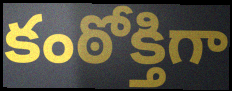
కంఠోక్తిగా